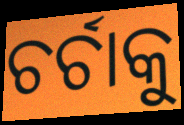
ଚର୍ଚାକୁ